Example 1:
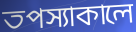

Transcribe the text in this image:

তপস্যাকালে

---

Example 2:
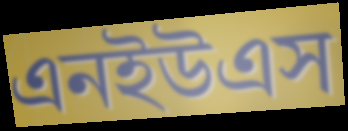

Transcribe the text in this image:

এনইউএস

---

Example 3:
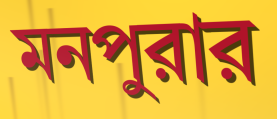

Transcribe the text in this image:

মনপুরার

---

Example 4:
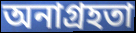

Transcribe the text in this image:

অনাগ্রহতা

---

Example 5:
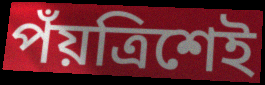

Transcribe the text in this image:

পঁয়ত্রিশেই